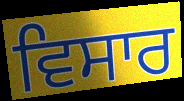
ਵਿਸਾਰ